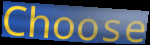
Choose